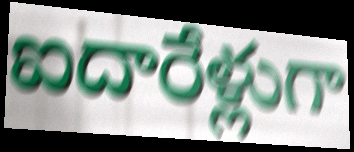
ఐదారేళ్లుగా